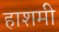
हाशमी